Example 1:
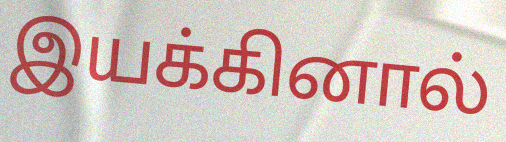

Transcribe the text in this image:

இயக்கினால்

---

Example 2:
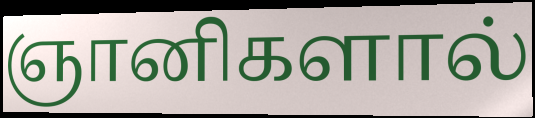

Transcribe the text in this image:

ஞானிகளால்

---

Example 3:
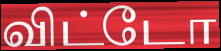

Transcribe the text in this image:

விட்டோ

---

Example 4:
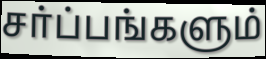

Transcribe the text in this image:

சர்ப்பங்களும்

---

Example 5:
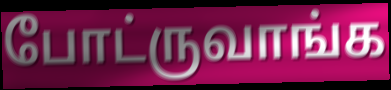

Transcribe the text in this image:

போட்ருவாங்க